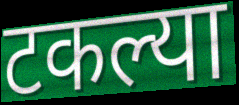
टकल्या